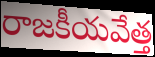
రాజకీయవేత్త